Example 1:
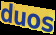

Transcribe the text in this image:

duos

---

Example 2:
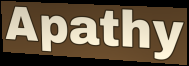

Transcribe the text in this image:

Apathy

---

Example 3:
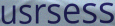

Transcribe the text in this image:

usrsess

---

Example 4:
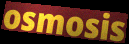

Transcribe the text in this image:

osmosis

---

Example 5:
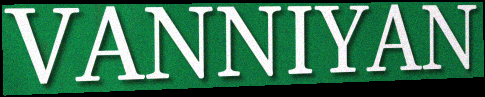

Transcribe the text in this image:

VANNIYAN